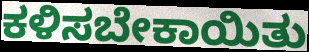
ಕಳಿಸಬೇಕಾಯಿತು